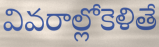
వివరాల్లోకెళితే